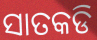
ସାତକଡି